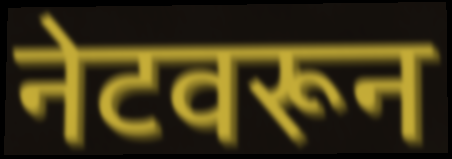
नेटवरून